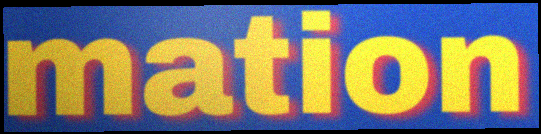
mation